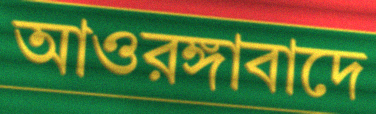
আওরঙ্গাবাদে